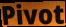
Pivot